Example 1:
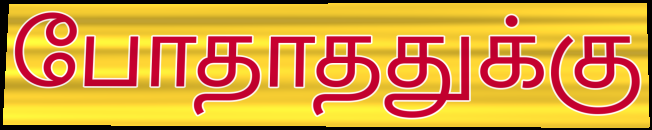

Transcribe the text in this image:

போதாததுக்கு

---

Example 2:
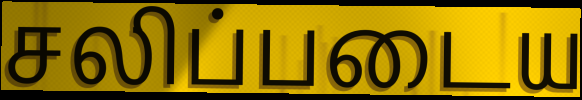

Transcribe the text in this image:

சலிப்படைய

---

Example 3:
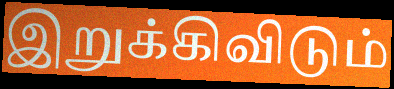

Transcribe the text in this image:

இறுக்கிவிடும்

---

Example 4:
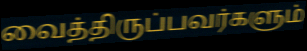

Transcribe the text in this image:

வைத்திருப்பவர்களும்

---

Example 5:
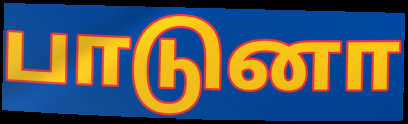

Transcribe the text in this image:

பாடுனா